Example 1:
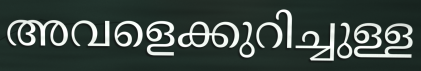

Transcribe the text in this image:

അവളെക്കുറിച്ചുള്ള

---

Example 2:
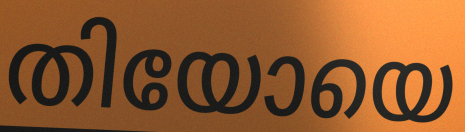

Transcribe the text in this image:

തിയോയെ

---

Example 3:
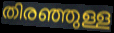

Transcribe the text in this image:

തിരഞ്ഞുള്ള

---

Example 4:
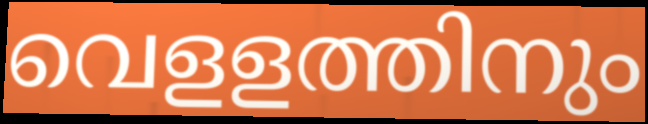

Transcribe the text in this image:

വെളളത്തിനും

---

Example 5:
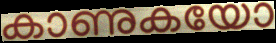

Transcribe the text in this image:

കാണുകയോ